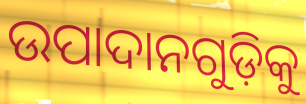
ଉପାଦାନଗୁଡ଼ିକୁ